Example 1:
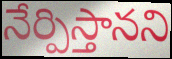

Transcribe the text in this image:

నేర్పిస్తానని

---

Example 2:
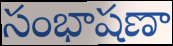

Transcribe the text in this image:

సంభాషణా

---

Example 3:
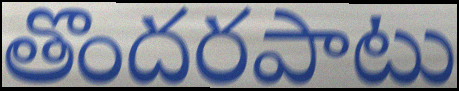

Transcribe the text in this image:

తొందరపాటు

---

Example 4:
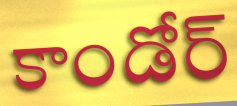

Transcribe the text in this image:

కాండోర్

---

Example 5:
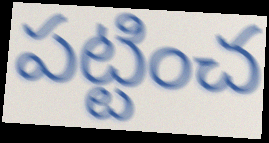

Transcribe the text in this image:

పట్టించ